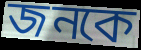
জনকে